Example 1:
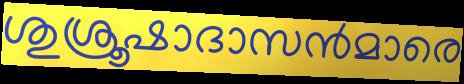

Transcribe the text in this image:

ശുശ്രൂഷാദാസൻമാരെ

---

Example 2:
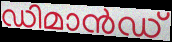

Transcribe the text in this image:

ഡിമാൻഡ്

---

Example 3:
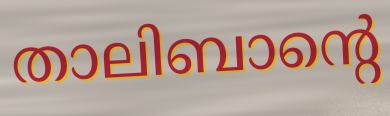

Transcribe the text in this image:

താലിബാന്റെ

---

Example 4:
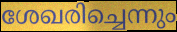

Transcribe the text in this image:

ശേഖരിച്ചെന്നും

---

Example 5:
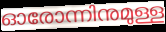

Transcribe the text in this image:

ഓരോന്നിനുമുള്ള